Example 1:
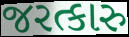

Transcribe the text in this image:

જરત્કારુ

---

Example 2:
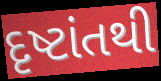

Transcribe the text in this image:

દૃષ્ટાંતથી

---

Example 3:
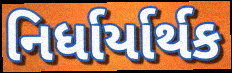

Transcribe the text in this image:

નિર્ધાર્યાર્થક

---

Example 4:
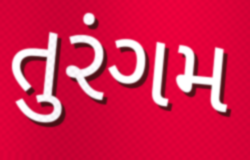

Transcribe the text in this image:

તુરંગમ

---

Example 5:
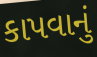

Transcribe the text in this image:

કાપવાનું